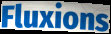
Fluxions